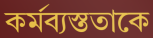
কর্মব্যস্ততাকে